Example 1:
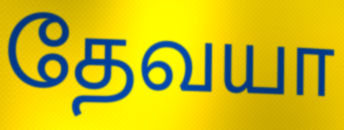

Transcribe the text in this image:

தேவயா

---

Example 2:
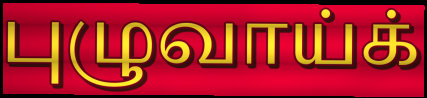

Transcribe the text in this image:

புழுவாய்க்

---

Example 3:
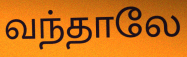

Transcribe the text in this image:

வந்தாலே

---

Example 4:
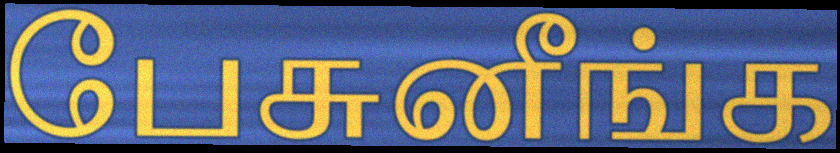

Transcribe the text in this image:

பேசுனீங்க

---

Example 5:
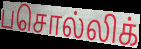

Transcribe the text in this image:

பசொல்லிக்